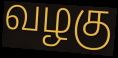
வழகு